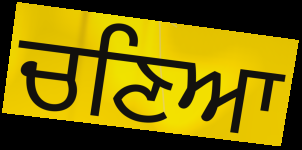
ਚਣਿਆ